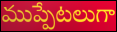
ముప్పేటలుగా